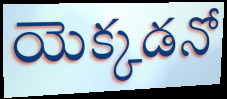
యెక్కడనో